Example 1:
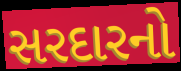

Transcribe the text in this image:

સરદારનો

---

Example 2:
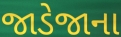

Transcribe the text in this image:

જાડેજાના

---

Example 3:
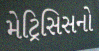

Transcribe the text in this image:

મેટ્રિસિસનો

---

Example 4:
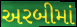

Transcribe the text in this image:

અરબીમાં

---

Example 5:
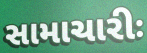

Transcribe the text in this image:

સામાચારીઃ